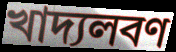
খাদ্যলবণ